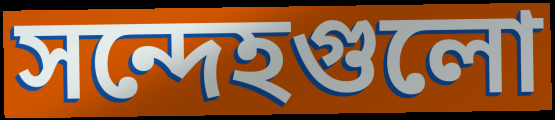
সন্দেহগুলো